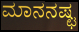
ಮಾನನಷ್ಟ